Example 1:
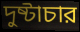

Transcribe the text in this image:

দুষ্টাচার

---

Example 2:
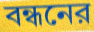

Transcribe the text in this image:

বন্ধনের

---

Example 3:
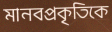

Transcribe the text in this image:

মানবপ্রকৃতিকে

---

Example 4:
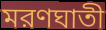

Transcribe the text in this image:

মরণঘাতী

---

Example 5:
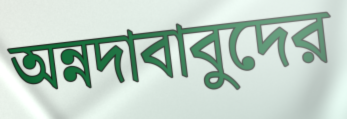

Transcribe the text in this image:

অন্নদাবাবুদের